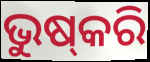
ଭୁଷ୍‍କରି